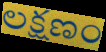
లక్షణం